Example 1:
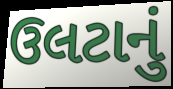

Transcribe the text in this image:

ઉલટાનું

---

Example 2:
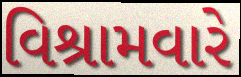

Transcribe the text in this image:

વિશ્રામવારે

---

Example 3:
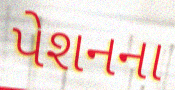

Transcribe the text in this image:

પેશનના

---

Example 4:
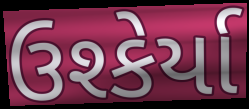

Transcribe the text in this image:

ઉશ્કેર્યા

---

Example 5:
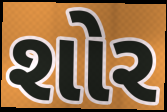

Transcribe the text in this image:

શોર